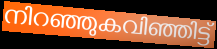
നിറഞ്ഞുകവിഞ്ഞിട്ട്